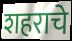
शहराचे